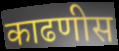
काढणीस